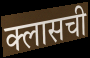
क्‍लासची